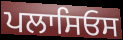
ਪਲਾਸਿਓਸ